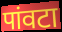
पांवटा